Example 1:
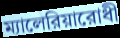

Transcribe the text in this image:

ম্যালেরিয়ারোধী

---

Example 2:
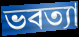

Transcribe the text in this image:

ভবত্যা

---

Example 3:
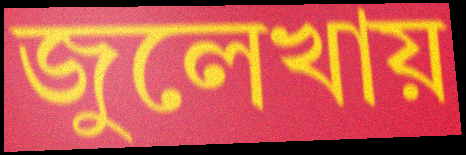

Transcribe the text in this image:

জুলেখায়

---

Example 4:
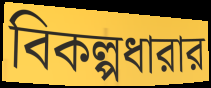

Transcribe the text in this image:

বিকল্পধারার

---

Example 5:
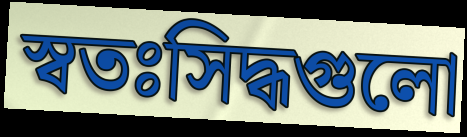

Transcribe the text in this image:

স্বতঃসিদ্ধগুলো